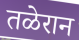
तळेरान